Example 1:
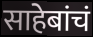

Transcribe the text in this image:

साहेबांचं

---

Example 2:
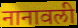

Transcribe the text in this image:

नानावली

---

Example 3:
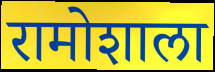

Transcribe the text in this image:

रामोशाला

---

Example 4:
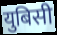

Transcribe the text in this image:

युबिसी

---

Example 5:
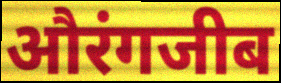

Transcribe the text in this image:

औरंगजीब